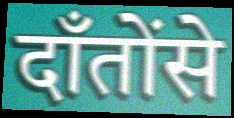
दाँतोंसे